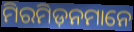
ମିରମିଡ଼ନମାନେ